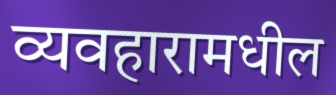
व्यवहारामधील